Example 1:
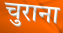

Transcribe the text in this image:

चुराना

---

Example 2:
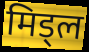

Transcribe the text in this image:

मिड्ल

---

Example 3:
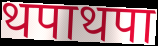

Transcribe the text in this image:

थपाथपा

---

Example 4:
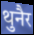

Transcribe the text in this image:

थुनैर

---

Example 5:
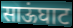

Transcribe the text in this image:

साऊंघाट